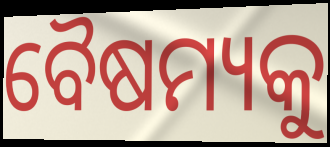
ବୈଷମ୍ୟକୁ